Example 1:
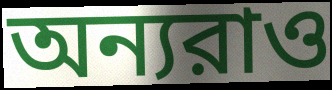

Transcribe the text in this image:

অন্যরাও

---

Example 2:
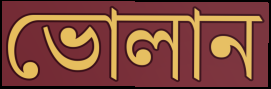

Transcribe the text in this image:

ভোলান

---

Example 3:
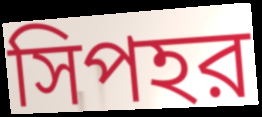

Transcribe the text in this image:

সিপহর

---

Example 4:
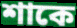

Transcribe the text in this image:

শাকে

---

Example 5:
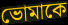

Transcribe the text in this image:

ভোমাকে